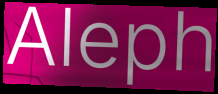
Aleph